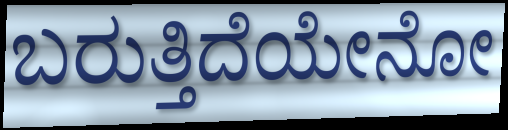
ಬರುತ್ತಿದೆಯೇನೋ